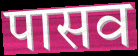
पासव